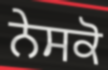
ਨੇਸਕੋ